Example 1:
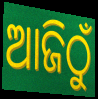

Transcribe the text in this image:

ଆଜିଠୁଁ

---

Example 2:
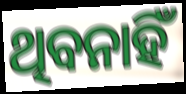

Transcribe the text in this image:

ଥିବନାହିଁ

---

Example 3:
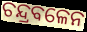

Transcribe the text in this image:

ଚନ୍ଦ୍ରବଳେନ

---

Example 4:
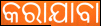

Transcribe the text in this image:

କରାଯାବା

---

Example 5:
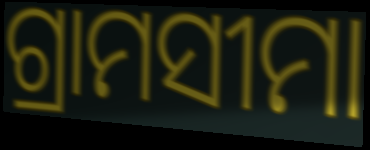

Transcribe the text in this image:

ଗ୍ରାମସୀମା